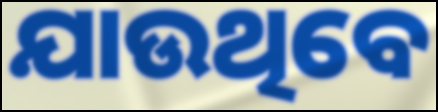
ଯାଉଥିବେ